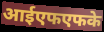
आईएफएफके